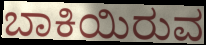
ಬಾಕಿಯಿರುವ